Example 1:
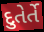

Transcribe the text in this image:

દુતેર્તે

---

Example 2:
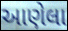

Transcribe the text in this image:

આણેલા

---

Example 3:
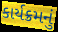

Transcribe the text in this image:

કાર્યક્રમનું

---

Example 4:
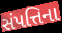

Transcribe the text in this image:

સંપત્તિના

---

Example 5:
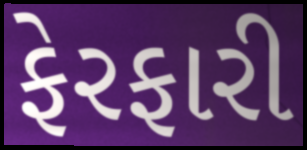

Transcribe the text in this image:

ફેરફારી